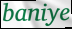
baniye